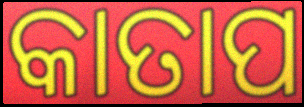
କାତାପ